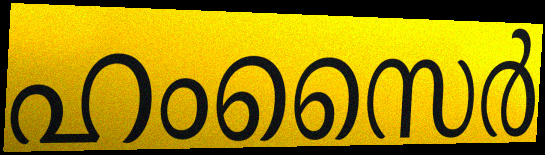
ഹംസൈർ